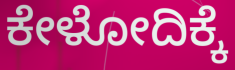
ಕೇಳೋದಿಕ್ಕೆ